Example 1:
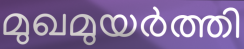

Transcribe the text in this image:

മുഖമുയർത്തി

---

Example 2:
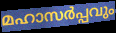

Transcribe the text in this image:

മഹാസർപ്പവും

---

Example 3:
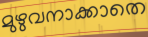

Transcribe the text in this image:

മുഴുവനാക്കാതെ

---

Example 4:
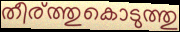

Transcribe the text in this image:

തീര്ത്തുകൊടുത്തു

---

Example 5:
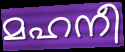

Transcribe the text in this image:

മഹനീ